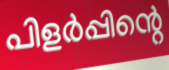
പിളർപ്പിന്റെ